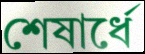
শেষার্ধে